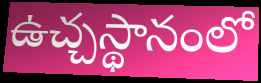
ఉచ్చస్థానంలో